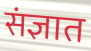
संज्ञात